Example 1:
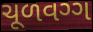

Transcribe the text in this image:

ચૂળવગ્ગ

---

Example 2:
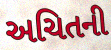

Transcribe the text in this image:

અચિતની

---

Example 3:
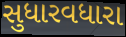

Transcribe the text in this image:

સુધારવધારા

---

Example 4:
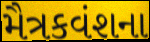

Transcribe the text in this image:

મૈત્રકવંશના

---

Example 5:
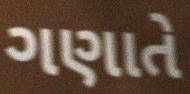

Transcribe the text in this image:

ગણાતે